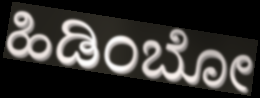
ಹಿಡಿಂಬೋ